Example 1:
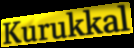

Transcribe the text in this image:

Kurukkal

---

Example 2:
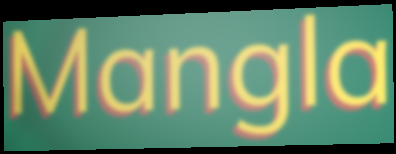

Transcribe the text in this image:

Mangla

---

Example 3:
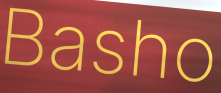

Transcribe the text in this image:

Basho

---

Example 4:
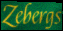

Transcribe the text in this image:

Zebergs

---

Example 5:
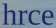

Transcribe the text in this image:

hrce